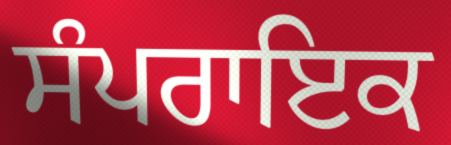
ਸੰਪਰਾਇਕ